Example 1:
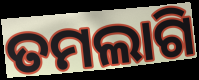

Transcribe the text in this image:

ତମଲାଗି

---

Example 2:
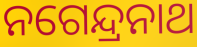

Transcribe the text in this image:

ନଗେନ୍ଦ୍ରନାଥ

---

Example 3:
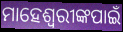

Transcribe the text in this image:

ମାହେଶ୍ୱରୀଙ୍କପାଇଁ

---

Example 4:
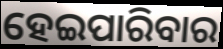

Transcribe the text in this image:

ହେଇପାରିବାର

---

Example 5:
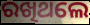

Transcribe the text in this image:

ରଖିଥଲେ